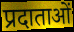
प्रदाताओं